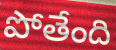
పోతేంది